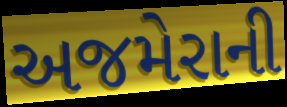
અજમેરાની